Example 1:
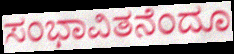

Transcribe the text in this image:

ಸಂಭಾವಿತನೆಂದೂ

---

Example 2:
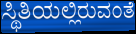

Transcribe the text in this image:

ಸ್ಥಿತಿಯಲ್ಲಿರುವಂತೆ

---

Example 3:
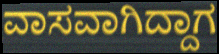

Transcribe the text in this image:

ವಾಸವಾಗಿದ್ದಾಗ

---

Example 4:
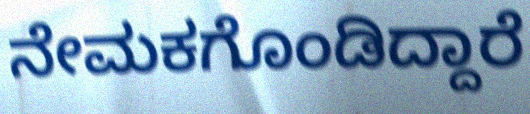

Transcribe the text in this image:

ನೇಮಕಗೊಂಡಿದ್ದಾರೆ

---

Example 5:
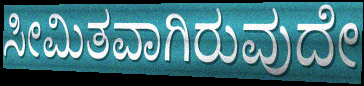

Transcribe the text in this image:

ಸೀಮಿತವಾಗಿರುವುದೇ